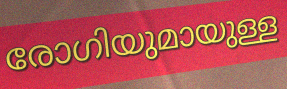
രോഗിയുമായുള്ള